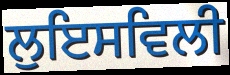
ਲੁਇਸਵਿਲੀ